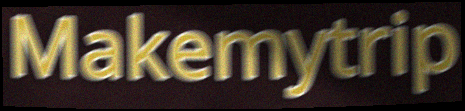
Makemytrip